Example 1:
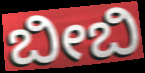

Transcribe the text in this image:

ಬೀಬಿ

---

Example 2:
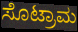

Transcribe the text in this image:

ಸೊಟ್ರಾಮ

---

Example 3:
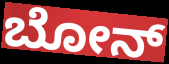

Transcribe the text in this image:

ಬೋನ್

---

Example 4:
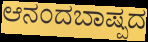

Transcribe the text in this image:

ಆನಂದಬಾಷ್ಪದ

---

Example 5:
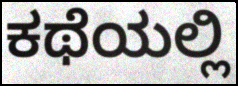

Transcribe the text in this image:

ಕಥೆಯಲ್ಲಿ